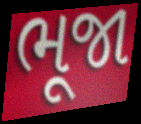
ભૂજા